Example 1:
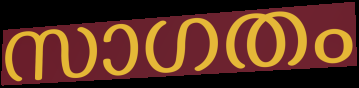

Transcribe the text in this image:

സാഗതം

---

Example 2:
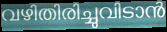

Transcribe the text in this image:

വഴിതിരിച്ചുവിടാൻ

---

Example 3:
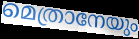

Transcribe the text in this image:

മെത്രാനേയും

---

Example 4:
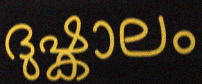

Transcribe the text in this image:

ദുഷ്കാലം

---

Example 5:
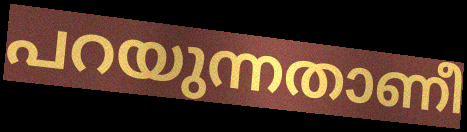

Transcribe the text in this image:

പറയുന്നതാണീ